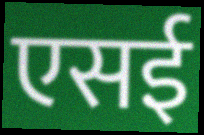
एसई